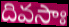
దివసాః